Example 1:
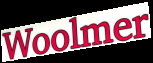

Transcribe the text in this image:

Woolmer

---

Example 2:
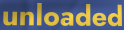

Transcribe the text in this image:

unloaded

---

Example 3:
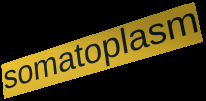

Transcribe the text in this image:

somatoplasm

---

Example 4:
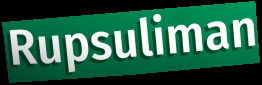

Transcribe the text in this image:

Rupsuliman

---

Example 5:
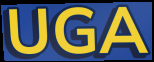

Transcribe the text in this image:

UGA